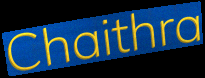
Chaithra